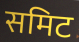
समिट